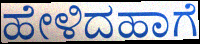
ಹೇಳಿದಹಾಗೆ